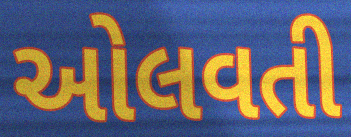
ઓલવતી